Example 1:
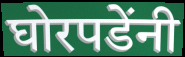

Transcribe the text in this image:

घोरपडेंनी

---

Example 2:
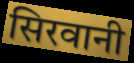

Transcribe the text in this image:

सिरवानी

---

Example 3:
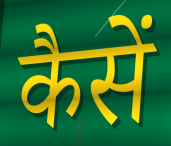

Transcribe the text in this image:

कैसें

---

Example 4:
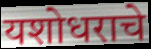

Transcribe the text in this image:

यशोधराचे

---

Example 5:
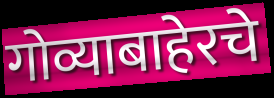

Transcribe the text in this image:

गोव्याबाहेरचे